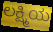
ಲಕ್ಷ್ಮಿಯ